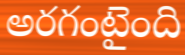
అరగంటైంది